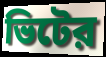
ভিটের